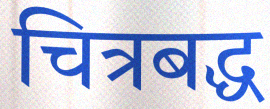
चित्रबद्ध